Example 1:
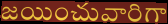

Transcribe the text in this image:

జయించువారిగా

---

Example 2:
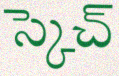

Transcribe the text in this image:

స్కెచ్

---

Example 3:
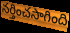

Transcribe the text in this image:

నర్తించసాగింది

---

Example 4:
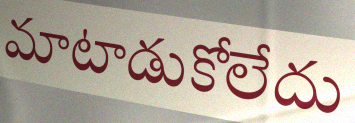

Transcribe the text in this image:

మాటాడుకోలేదు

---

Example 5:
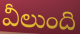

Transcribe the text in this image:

వీలుంది